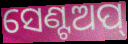
ସେଣ୍ଟଅପ୍